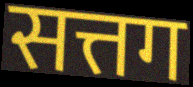
सत्तग